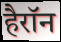
हैरॉन